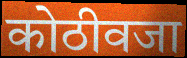
कोठीवजा